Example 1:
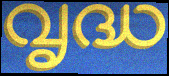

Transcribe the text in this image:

വൃദ്ധ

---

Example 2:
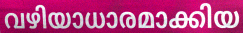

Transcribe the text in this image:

വഴിയാധാരമാക്കിയ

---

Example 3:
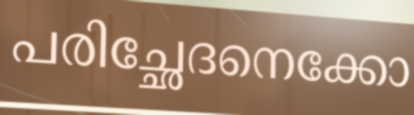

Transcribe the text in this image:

പരിച്ഛേദനെക്കോ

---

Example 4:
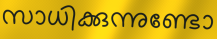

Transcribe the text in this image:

സാധിക്കുന്നുണ്ടോ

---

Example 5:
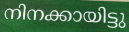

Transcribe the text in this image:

നിനക്കായിട്ടു